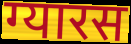
ग्यारस